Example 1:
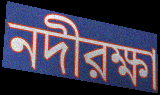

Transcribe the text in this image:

নদীরক্ষা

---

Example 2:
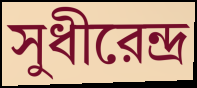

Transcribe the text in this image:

সুধীরেন্দ্র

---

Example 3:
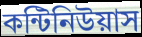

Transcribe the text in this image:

কন্টিনিউয়াস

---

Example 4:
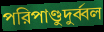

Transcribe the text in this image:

পরিপাণ্ডুদুর্ব্বল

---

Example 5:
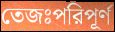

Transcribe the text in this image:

তেজঃপরিপূর্ণ